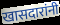
खासदारांनी